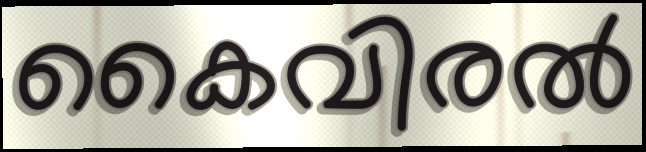
കൈവിരൽ